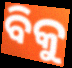
ବିକୁ